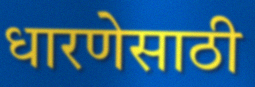
धारणेसाठी